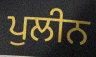
ਪੁਲੀਨ